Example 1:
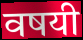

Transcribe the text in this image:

वषयी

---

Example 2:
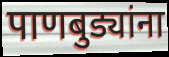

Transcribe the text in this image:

पाणबुड्यांना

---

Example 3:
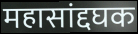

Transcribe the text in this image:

महासांद्दघक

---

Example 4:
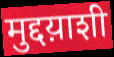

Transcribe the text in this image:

मुद्दय़ाशी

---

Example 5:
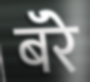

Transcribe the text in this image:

बॅरे